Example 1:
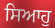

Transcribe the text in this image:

ਸਿਆਹੁ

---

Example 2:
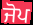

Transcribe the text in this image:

ਜੋਪ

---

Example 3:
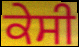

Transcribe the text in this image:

ਕੇਸੀ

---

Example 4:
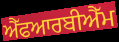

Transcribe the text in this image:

ਐੱਫਆਰਬੀਐੱਮ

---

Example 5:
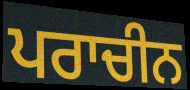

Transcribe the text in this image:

ਪਰਾਚੀਨ